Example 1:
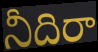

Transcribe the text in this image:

నీదిరా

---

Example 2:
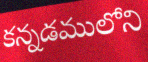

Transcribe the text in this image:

కన్నడములోని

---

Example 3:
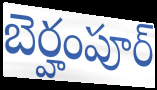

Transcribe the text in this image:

బెర్హంపూర్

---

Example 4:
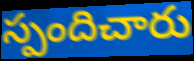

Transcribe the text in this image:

స్పందిచారు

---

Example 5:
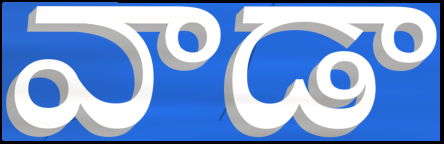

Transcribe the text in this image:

వాడా